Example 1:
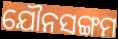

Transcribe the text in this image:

ଯୌନସଙ୍ଗମ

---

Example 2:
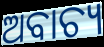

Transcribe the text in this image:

ଅବାଚ୍ୟ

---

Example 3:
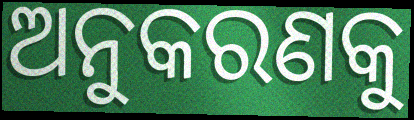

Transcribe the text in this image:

ଅନୁକରଣକୁ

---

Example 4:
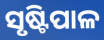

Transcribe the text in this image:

ସୃଷ୍ଟିପାଳ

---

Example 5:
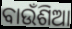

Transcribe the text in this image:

ବାଉଁଶିଆ